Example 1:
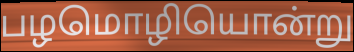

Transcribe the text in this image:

பழமொழியொன்று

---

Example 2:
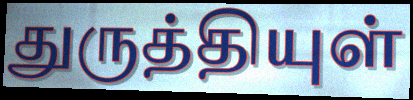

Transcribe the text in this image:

துருத்தியுள்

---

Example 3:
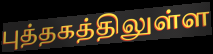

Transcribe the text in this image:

புத்தகத்திலுள்ள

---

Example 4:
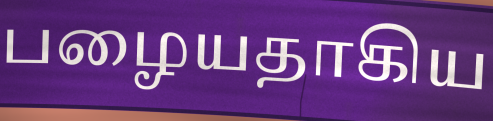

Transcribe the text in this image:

பழையதாகிய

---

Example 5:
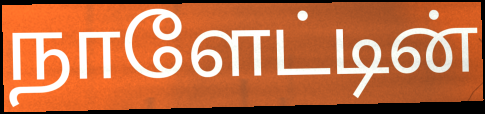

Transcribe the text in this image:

நாளேட்டின்